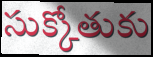
సుక్కోతుకు